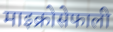
माइक्रोसेफाली